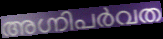
അഗ്നിപർവത